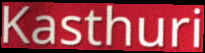
Kasthuri